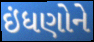
ઇંધણોને